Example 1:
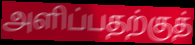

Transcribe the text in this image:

அளிப்பதற்குத்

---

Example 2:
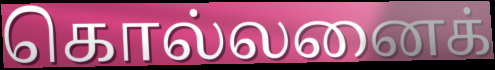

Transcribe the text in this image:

கொல்லனைக்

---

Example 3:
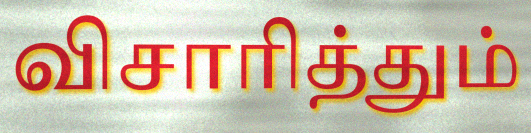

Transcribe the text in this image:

விசாரித்தும்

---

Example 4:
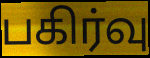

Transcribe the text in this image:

பகிர்வு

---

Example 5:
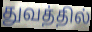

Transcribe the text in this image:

துவத்தில்